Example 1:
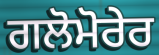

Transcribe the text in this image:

ਗਲੋਮੋਰੇਰ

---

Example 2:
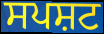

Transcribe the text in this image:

ਸਪਸ਼ਟ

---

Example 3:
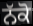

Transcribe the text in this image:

ਨੱਕੋ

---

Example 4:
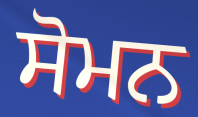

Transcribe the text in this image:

ਸੋਮਨ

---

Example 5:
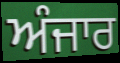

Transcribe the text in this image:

ਅੰਜਾਰ